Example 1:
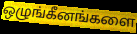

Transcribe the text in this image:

ஒழுங்கீனங்களை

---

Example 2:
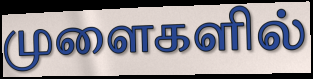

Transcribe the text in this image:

முளைகளில்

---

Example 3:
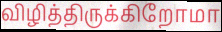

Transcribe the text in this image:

விழித்திருக்கிறோமா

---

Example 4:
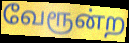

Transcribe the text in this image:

வேரூன்ற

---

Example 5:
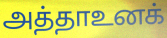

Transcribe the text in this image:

அத்தாஉனக்